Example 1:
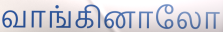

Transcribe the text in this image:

வாங்கினாலோ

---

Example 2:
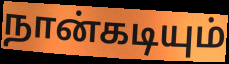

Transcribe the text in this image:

நான்கடியும்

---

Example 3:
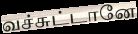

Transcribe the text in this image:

வச்சுட்டானே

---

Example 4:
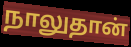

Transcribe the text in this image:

நாலுதான்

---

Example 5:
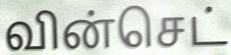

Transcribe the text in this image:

வின்செட்